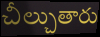
చీల్చుతారు